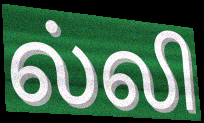
ல்லி